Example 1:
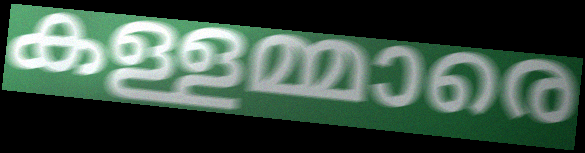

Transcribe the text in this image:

കള്ളമ്മാരെ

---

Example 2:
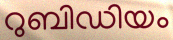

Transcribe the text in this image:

റുബിഡിയം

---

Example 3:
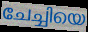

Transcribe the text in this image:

ചേച്ചിയെ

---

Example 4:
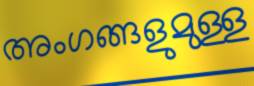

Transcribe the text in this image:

അംഗങ്ങളുമുള്ള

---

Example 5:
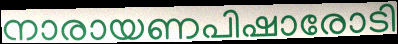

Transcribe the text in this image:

നാരായണപിഷാരോടി